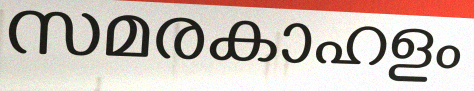
സമരകാഹളം